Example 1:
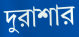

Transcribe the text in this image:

দুরাশার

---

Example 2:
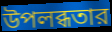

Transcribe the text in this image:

উপলব্ধতার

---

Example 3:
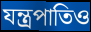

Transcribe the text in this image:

যন্ত্রপাতিও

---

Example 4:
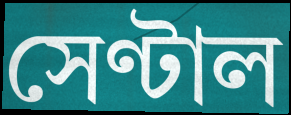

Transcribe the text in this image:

সেণ্টাল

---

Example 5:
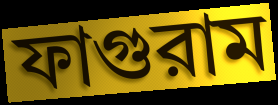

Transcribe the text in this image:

ফাগুরাম